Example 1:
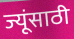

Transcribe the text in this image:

ज्यूंसाठी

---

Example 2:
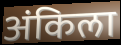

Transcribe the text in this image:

अंकिला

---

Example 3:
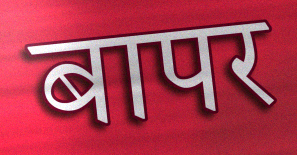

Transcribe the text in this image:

बापर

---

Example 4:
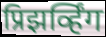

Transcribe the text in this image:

प्रिझर्व्हिंग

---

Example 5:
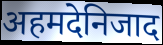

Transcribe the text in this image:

अहमदेनिजाद